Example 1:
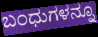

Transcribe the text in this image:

ಬಂಧುಗಳನ್ನೂ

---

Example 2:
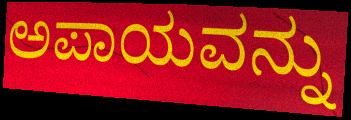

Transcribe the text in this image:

ಅಪಾಯವನ್ನು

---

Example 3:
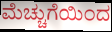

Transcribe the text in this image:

ಮೆಚ್ಚುಗೆಯಿಂದ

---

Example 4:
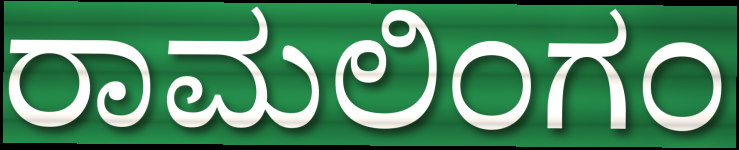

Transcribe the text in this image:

ರಾಮಲಿಂಗಂ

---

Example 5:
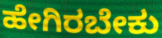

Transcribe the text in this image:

ಹೇಗಿರಬೇಕು